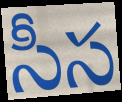
సీస